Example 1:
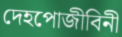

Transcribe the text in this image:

দেহপোজীবিনী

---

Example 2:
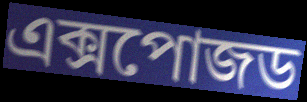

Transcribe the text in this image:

এক্সপোজড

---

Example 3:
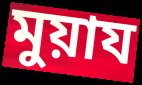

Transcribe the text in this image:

মুয়ায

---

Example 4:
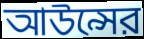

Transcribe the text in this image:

আউন্সের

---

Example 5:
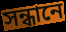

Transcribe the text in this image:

সন্ধানে